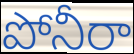
పోనీరా